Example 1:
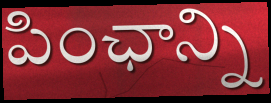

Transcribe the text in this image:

పింఛాన్ని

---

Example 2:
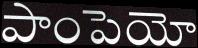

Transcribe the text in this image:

పాంపెయో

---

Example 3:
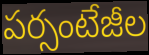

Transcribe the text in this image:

పర్సంటేజీల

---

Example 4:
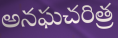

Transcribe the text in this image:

అనఘచరిత్ర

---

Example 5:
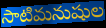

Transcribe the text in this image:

సాటిమనుషుల